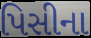
પિસીના